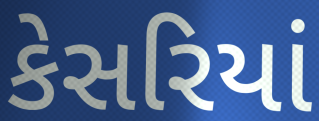
કેસરિયાં